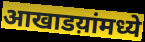
आखाडय़ांमध्ये